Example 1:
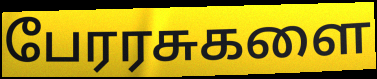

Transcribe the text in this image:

பேரரசுகளை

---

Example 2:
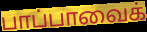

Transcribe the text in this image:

பாப்பாவைக்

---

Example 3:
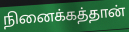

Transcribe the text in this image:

நினைக்கத்தான்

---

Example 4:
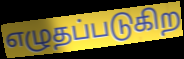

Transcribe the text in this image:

எழுதப்படுகிற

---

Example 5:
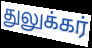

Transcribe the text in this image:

துலுக்கர்